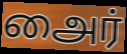
அைர்